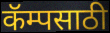
कॅम्पसाठी